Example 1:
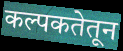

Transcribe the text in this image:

कल्पकतेतून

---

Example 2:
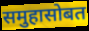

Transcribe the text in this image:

समुहासोबत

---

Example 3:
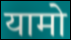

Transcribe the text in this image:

यामो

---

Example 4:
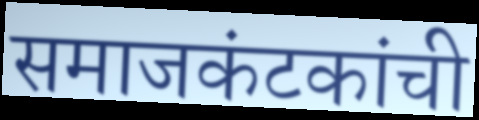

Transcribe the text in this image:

समाजकंटकांची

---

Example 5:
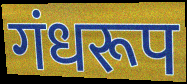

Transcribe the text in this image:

गंधरूप